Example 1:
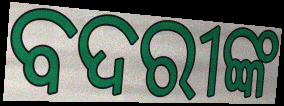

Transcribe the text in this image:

ବଦରୀଙ୍କ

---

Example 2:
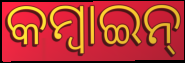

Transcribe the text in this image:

କମ୍ବାଇନ୍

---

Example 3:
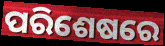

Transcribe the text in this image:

ପରିଶେଷରେ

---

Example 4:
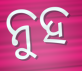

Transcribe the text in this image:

ନୁହ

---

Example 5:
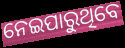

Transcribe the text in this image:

ନେଇପାରୁଥିବେ